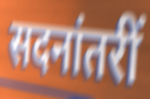
सदनांतरीं